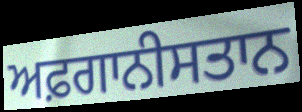
ਅਫ਼ਗਾਨੀਸਤਾਨ